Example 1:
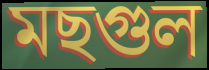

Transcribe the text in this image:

মছগুল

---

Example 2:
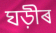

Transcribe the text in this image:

ঘড়ীৰ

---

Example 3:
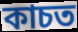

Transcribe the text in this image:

কাচত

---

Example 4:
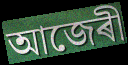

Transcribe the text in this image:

আজেৰী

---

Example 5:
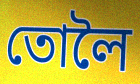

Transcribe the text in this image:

তোলৈ